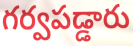
గర్వపడ్డారు